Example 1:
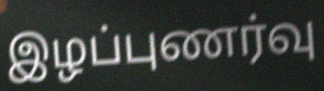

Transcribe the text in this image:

இழப்புணர்வு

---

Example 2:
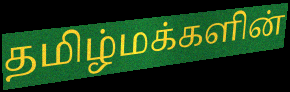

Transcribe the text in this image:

தமிழ்மக்களின்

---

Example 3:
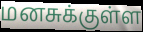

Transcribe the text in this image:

மனசுக்குள்ள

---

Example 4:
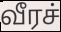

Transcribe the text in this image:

வீரச்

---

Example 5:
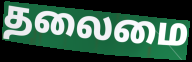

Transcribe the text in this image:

தலைமை